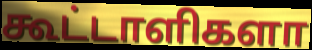
கூட்டாளிகளா